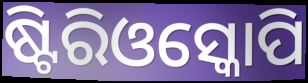
ଷ୍ଟିରିଓସ୍କୋପି